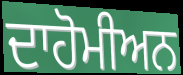
ਦਾਹੋਮੀਅਨ